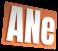
ANe